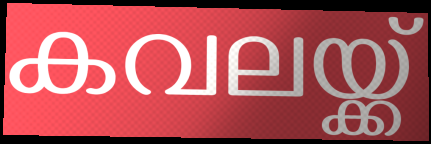
കവലയ്ക്ക്